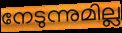
നേടുന്നുമില്ല